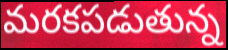
మరకపడుతున్న